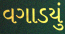
વગાડયું